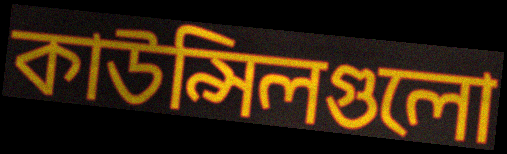
কাউন্সিলগুলো